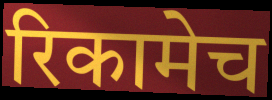
रिकामेच